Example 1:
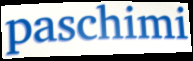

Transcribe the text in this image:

paschimi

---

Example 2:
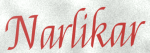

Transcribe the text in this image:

Narlikar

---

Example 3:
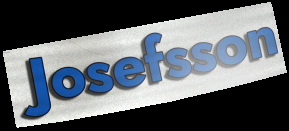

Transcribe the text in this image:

Josefsson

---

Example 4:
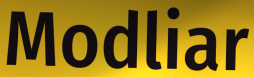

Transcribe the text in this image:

Modliar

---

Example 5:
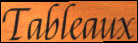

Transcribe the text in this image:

Tableaux